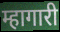
म्हागारी